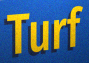
Turf